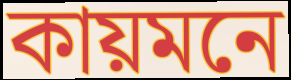
কায়মনে